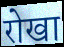
रोखा